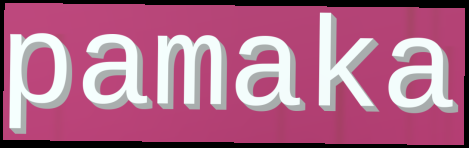
pamaka